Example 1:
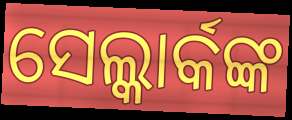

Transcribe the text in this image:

ସେଲ୍କାର୍କଙ୍କ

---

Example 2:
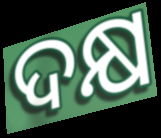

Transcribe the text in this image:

ଦକ୍ଷ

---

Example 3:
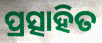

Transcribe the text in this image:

ପ୍ରତ୍ସାହିତ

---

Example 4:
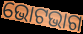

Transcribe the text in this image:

ଭୋଟଭାଗ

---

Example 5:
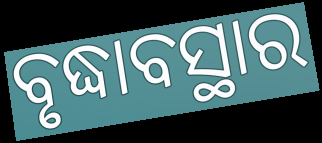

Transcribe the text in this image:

ବୃଦ୍ଧାବସ୍ଥାର